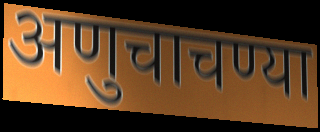
अणुचाचण्या